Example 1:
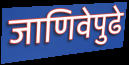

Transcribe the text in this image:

जाणिवेपुढे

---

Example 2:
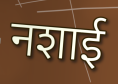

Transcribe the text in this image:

नशाई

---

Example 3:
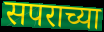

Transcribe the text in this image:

सपराच्या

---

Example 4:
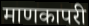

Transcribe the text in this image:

माणकापरी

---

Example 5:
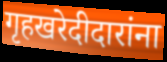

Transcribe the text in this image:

गृहखरेदीदारांना